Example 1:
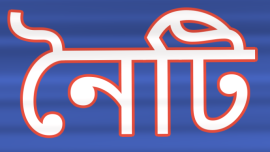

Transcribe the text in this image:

নৈটি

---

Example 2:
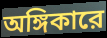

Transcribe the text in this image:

অঙ্গিকারে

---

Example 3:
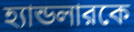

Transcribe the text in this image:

হ্যান্ডলারকে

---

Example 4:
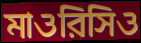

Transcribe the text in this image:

মাওরিসিও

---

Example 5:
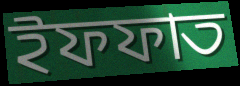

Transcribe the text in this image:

ইফফাত